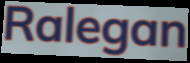
Ralegan